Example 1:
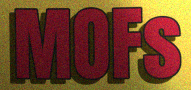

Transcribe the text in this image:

MOFs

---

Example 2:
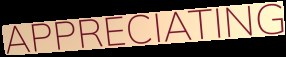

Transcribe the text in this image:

APPRECIATING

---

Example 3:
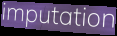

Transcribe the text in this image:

imputation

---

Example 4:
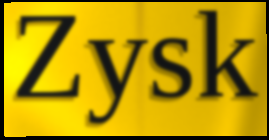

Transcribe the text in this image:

Zysk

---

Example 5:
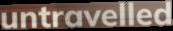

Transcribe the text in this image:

untravelled